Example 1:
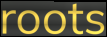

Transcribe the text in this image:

roots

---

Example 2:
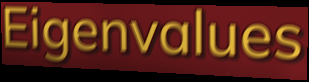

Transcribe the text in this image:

Eigenvalues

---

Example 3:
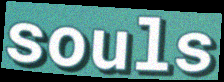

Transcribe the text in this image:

souls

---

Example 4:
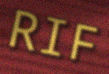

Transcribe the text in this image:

RIF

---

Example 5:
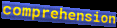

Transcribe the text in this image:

comprehension